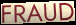
FRAUD